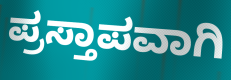
ಪ್ರಸ್ತಾಪವಾಗಿ